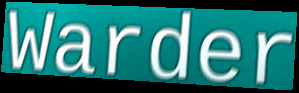
Warder